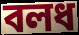
বলধ